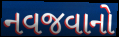
નવજવાનો